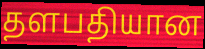
தளபதியான